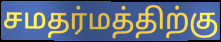
சமதர்மத்திற்கு